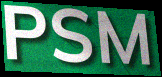
PSM